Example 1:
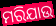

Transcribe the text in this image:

ମରିଯାଉ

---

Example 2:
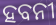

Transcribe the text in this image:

ହବନୀ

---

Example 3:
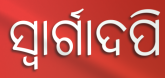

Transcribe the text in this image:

ସ୍ୱାର୍ଗାଦପି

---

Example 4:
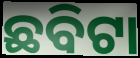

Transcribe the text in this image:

ଛବିଟା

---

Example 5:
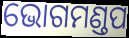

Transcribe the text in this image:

ଭୋଗମଣ୍ଡପ